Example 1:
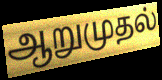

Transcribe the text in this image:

ஆறுமுதல்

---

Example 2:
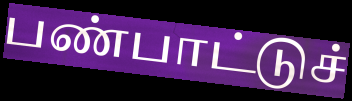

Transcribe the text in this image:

பண்பாட்டுச்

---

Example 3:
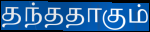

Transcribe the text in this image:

தந்ததாகும்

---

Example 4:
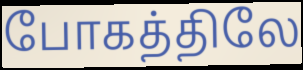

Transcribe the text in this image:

போகத்திலே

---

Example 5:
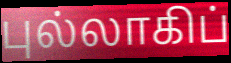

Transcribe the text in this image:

புல்லாகிப்